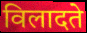
विलादते